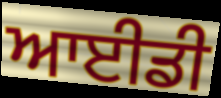
ਆਈਡੀ